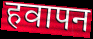
हवापन